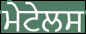
ਮੇਟੇਲਸ